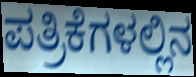
ಪತ್ರಿಕೆಗಳಲ್ಲಿನ